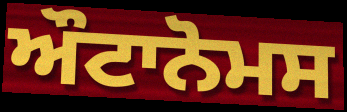
ਔਟਾਨੋਮਸ